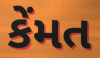
કેંમત